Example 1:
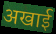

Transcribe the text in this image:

अखाई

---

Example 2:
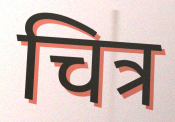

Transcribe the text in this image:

चित्र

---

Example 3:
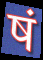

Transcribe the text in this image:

षं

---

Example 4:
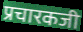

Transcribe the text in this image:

प्रचारकजी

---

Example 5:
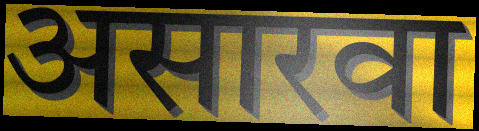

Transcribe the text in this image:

असारवा